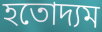
হতোদ্যম